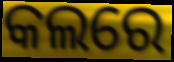
କଲରେ